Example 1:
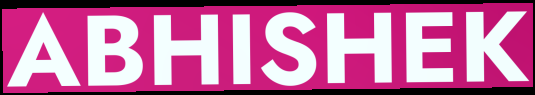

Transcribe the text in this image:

ABHISHEK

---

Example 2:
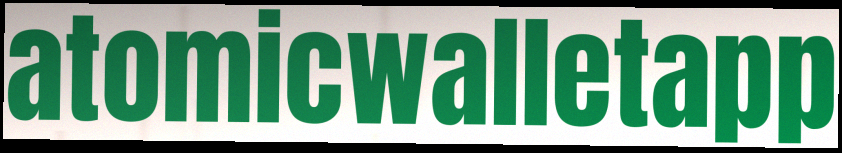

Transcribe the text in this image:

atomicwalletapp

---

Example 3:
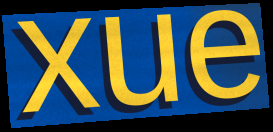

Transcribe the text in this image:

xue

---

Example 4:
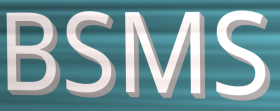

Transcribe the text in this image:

BSMS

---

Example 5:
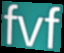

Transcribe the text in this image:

fvf